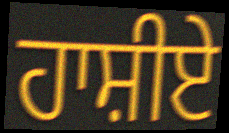
ਹਾਸ਼ੀਏ